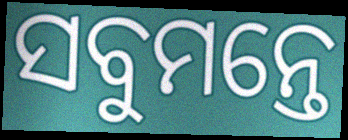
ସବୁମନ୍ତେ